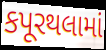
કપૂરથલામાં